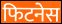
फिटनेस